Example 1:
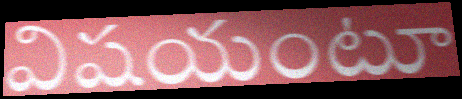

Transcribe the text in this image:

విషయంటూ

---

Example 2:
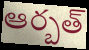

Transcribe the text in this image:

ఆర్బత్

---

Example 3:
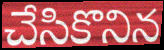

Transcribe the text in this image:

చేసికొనిన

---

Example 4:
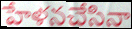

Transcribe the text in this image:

హేళనచేసినా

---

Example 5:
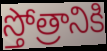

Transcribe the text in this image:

స్తోత్రానికి